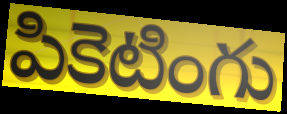
పికెటింగు